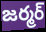
జర్మర్